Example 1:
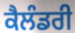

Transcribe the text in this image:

ਕੈਲੰਡਰੀ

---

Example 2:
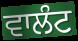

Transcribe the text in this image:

ਵਾਲੰਟ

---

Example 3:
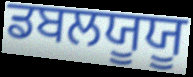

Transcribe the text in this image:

ਡਬਲਯੂਯੂ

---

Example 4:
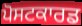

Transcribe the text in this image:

ਪੋਸਟਕਾਰਡ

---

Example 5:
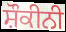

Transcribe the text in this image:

ਸ਼ੌਕੀਨੀ